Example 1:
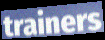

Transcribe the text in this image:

trainers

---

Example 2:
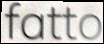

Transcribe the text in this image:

fatto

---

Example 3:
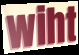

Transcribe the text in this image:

wiht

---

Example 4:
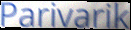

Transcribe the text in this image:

Parivarik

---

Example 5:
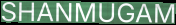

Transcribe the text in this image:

SHANMUGAM